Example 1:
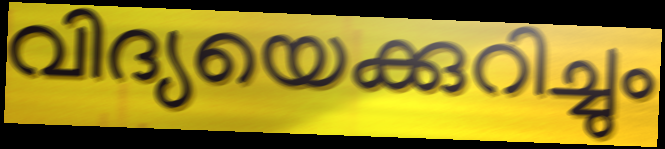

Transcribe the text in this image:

വിദ്യയെക്കുറിച്ചും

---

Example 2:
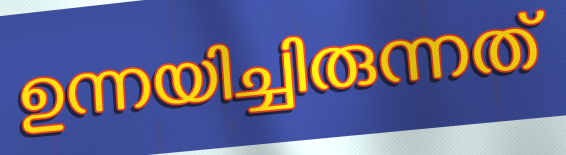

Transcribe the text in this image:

ഉന്നയിച്ചിരുന്നത്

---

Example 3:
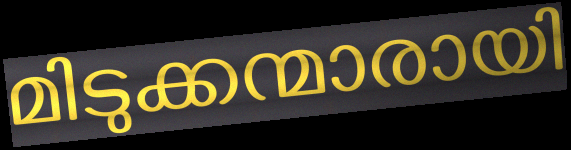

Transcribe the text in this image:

മിടുക്കന്മാരായി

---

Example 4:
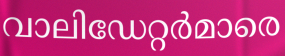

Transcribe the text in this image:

വാലിഡേറ്റർമാരെ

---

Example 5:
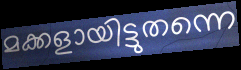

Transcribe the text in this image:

മക്കളായിട്ടുതന്നെ